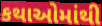
કથાઓમાંથી